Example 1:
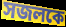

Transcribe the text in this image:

সজলকে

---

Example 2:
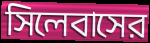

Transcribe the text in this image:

সিলেবাসের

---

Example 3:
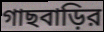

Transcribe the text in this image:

গাছবাড়ির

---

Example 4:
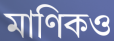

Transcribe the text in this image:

মাণিকও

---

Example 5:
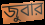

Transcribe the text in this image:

জুবার